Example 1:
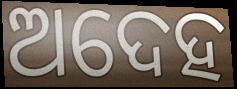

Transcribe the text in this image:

ଅଦେହ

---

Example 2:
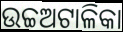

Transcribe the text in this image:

ଉଚ୍ଚଅଟାଳିକା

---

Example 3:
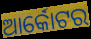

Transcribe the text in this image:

ଆର୍କୋଟର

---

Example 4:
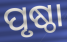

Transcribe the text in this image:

ପୃଷ୍ଠା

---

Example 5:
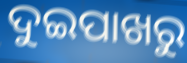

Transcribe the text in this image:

ଦୁଇପାଖରୁ